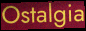
Ostalgia